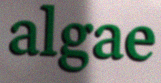
algae